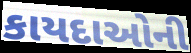
કાયદાઓની